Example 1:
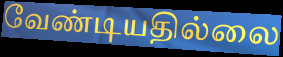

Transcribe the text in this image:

வேண்டியதில்லை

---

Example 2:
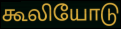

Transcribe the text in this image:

கூலியோடு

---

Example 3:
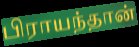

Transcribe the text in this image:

பிராயந்தான்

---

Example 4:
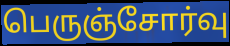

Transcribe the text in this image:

பெருஞ்சோர்வு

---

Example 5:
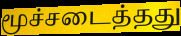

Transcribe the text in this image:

மூச்சடைத்தது